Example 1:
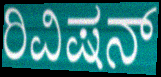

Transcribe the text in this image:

ರಿವಿಷನ್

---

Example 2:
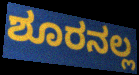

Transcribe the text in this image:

ಶೂರನಲ್ಲ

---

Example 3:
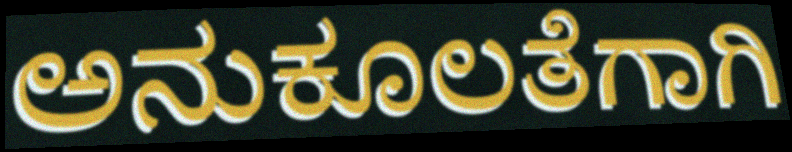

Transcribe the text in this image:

ಅನುಕೂಲತೆಗಾಗಿ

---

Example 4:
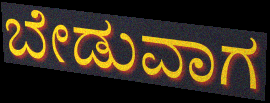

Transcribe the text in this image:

ಬೇಡುವಾಗ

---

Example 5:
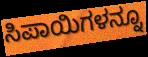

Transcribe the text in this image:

ಸಿಪಾಯಿಗಳನ್ನೂ